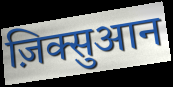
ज़िक्सुआन